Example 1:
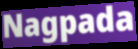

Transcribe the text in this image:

Nagpada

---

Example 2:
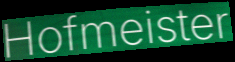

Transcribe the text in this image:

Hofmeister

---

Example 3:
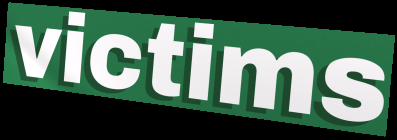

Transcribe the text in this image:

victims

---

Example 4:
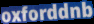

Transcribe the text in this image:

oxforddnb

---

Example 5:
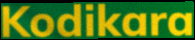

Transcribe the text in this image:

Kodikara